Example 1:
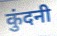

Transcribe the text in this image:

कुंदनी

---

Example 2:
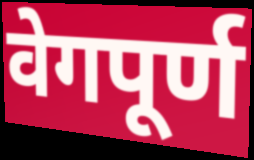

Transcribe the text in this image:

वेगपूर्ण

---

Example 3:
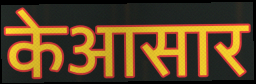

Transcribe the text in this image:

केआसार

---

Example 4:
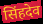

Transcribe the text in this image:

सिंहदेव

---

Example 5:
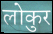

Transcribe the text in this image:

लोकुर